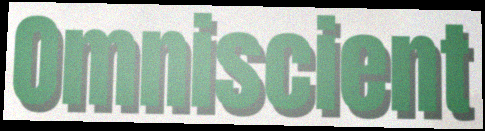
Omniscient